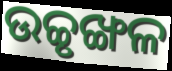
ଉଚ୍ଚୃଙ୍ଖଳ